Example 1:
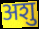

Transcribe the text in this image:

अशु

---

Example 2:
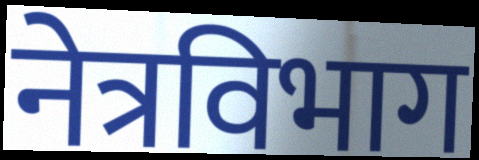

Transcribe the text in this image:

नेत्रविभाग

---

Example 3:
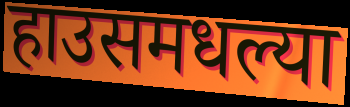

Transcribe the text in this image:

हाउसमधल्या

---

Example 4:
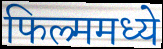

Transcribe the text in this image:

फिल्ममध्ये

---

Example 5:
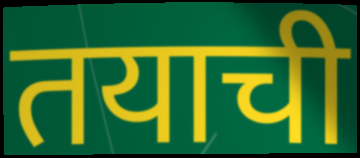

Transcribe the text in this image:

तयाची